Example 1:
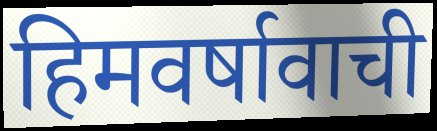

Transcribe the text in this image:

हिमवर्षावाची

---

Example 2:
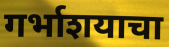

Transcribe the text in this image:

गर्भाशयाचा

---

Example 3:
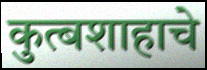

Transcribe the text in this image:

कुत्बशाहाचे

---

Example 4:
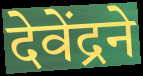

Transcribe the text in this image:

देवेंद्रने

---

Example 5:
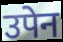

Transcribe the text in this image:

उपेन